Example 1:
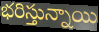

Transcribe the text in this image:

భరిస్తున్నాయి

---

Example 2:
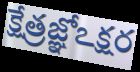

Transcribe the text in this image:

క్షేత్రజ్ఞోఽక్షర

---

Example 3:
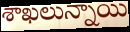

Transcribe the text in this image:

శాఖలున్నాయి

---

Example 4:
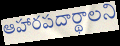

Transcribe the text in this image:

ఆహారపదార్థాలని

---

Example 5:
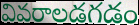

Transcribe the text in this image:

వివరాలడగడం